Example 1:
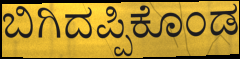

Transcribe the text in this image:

ಬಿಗಿದಪ್ಪಿಕೊಂಡ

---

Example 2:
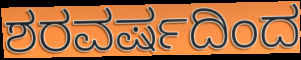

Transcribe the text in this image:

ಶರವರ್ಷದಿಂದ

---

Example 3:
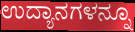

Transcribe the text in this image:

ಉದ್ಯಾನಗಳನ್ನೂ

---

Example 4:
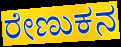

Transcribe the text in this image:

ರೇಣುಕನ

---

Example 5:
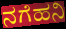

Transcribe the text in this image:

ನಗೆಹನಿ